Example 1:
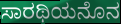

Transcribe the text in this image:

ಸಾರಥಿಯನೊನ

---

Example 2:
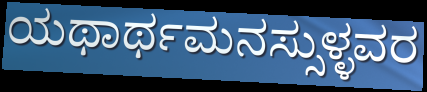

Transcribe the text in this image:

ಯಥಾರ್ಥಮನಸ್ಸುಳ್ಳವರ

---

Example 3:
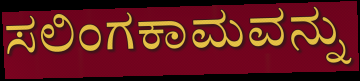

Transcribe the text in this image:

ಸಲಿಂಗಕಾಮವನ್ನು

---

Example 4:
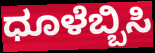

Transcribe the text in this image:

ಧೂಳೆಬ್ಬಿಸಿ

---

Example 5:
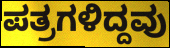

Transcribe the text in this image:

ಪತ್ರಗಳಿದ್ದವು